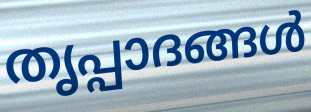
തൃപ്പാദങ്ങൾ